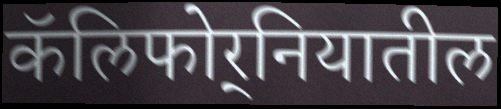
कॅलिफोर्नियातील